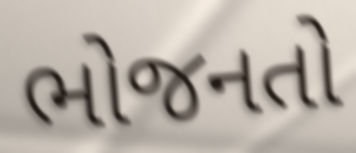
ભોજનતો